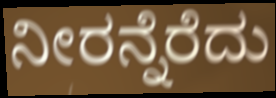
ನೀರನ್ನೆರೆದು